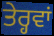
ਤੇਰ੍ਹਵਾਂ